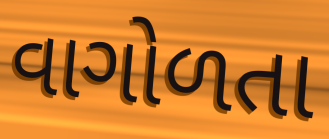
વાગોળતા